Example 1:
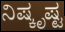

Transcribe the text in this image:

ನಿಷ್ಕೃಷ್ಟ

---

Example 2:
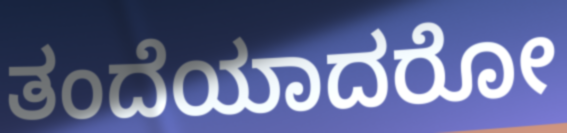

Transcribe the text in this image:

ತಂದೆಯಾದರೋ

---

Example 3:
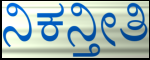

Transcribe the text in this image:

ನಿಕನ್ತೀತಿ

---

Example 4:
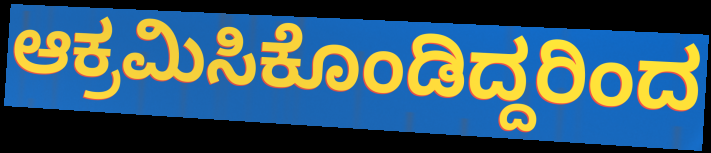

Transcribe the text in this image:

ಆಕ್ರಮಿಸಿಕೊಂಡಿದ್ದರಿಂದ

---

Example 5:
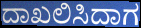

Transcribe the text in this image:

ದಾಖಲಿಸಿದಾಗ